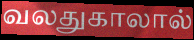
வலதுகாலால்